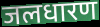
जलधारण